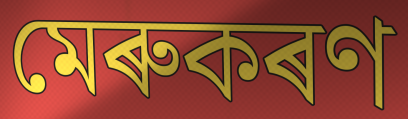
মেৰুকৰণ